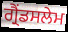
ਗ੍ਰੈਂਡਸਲੇਮ